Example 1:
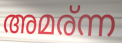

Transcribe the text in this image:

അമര്ന്ന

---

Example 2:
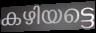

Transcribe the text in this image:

കഴിയട്ടെ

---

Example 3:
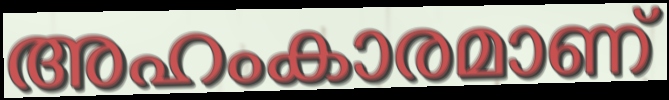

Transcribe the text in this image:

അഹംകാരമാണ്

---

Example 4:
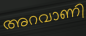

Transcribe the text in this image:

അറവാണി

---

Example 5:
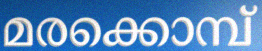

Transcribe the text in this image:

മരക്കൊമ്പ്